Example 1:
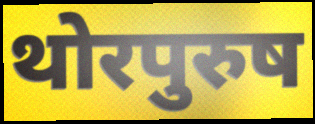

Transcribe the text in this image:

थोरपुरुष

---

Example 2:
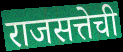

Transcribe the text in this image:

राजसत्तेची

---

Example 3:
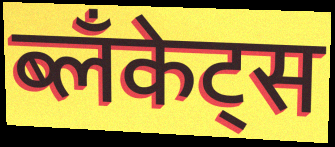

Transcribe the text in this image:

ब्लॅंकेट्स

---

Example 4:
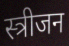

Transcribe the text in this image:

स्त्रीजन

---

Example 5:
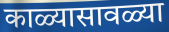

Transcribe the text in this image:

काळ्यासावळ्या